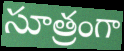
సూత్రంగా